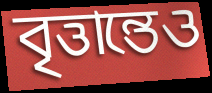
বৃত্তান্তেও